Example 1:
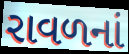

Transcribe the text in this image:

રાવળનાં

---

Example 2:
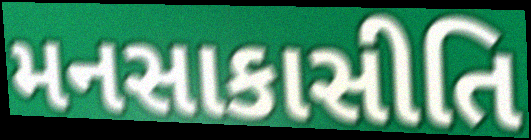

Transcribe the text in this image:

મનસાકાસીતિ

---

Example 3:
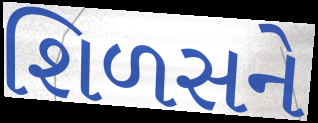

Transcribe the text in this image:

શિળસને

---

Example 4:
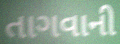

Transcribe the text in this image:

તાગવાની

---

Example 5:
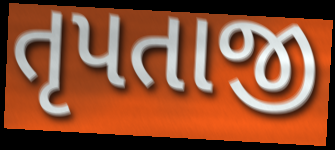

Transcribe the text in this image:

તૃપતાજી